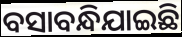
ବସାବନ୍ଧିଯାଇଛି